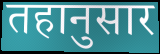
तहानुसार